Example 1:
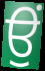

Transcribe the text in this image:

ਉਂ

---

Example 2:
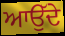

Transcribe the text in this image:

ਆਉੱਦੇ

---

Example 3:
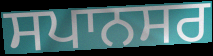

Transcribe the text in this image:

ਸਪਾਨਸਰ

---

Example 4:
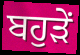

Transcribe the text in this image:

ਬਹੁੜੇਂ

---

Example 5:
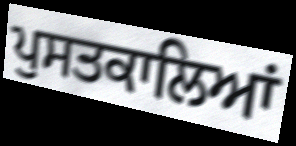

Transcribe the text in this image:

ਪੁਸਤਕਾਲਿਆਂ